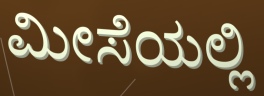
ಮೀಸೆಯಲ್ಲಿ